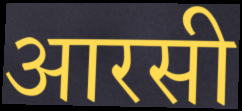
आरसी